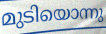
മുടിയൊന്നു